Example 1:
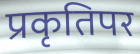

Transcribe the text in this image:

प्रकृतिपर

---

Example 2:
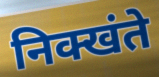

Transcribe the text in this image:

निक्खंते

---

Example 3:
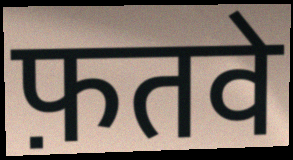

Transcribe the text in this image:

फ़तवे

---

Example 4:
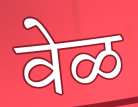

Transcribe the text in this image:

वेळ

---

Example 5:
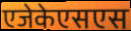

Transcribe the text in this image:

एजेकेएसएस